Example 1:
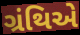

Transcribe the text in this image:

ગ્રંથિએ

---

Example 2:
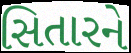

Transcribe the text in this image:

સિતારને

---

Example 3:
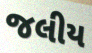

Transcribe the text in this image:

જલીય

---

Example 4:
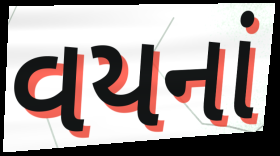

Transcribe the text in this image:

વયનાં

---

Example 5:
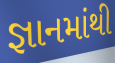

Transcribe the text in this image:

જ્ઞાનમાંથી